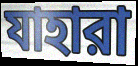
যাহারা